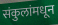
संकुलांमधून